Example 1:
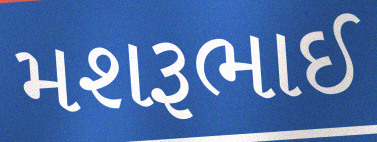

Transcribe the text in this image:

મશરૂભાઈ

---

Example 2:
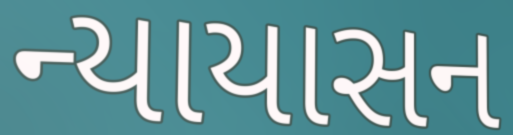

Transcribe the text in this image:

ન્યાયાસન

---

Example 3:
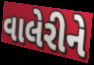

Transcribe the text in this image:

વાલેરીને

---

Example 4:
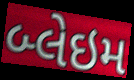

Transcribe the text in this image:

બ્લેઇમ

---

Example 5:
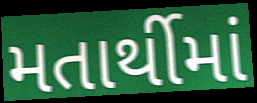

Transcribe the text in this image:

મતાર્થીમાં